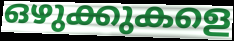
ഒഴുക്കുകളെ